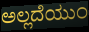
ಅಲ್ಲದೆಯುಂ